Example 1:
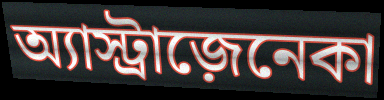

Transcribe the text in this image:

অ্যাস্ট্রাজ়েনেকা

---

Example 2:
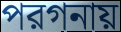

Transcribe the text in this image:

পরগনায়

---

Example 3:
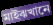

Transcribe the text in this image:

মাইঝখানে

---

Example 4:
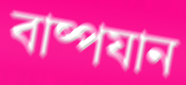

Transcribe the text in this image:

বাষ্পযান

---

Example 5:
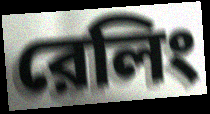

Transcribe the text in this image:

রেলিং